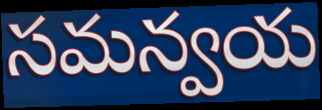
సమన్వయ